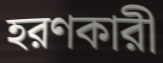
হরণকারী